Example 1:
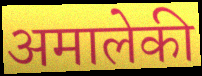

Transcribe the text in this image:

अमालेकी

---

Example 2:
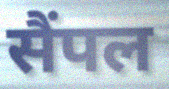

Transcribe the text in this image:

सैंपल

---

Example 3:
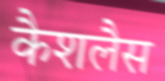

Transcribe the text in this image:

कैशलैस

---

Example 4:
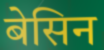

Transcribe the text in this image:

बेसिन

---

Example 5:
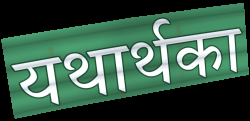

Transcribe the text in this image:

यथार्थका